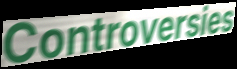
Controversies